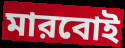
মারবোই